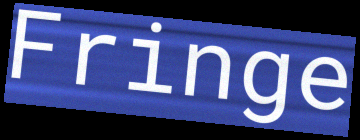
Fringe